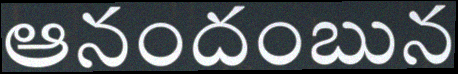
ఆనందంబున